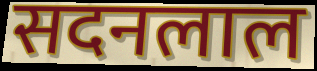
सदनलाल